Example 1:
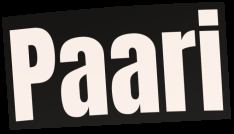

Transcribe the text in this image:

Paari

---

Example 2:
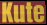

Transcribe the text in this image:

Kute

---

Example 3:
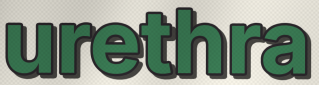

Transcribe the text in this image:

urethra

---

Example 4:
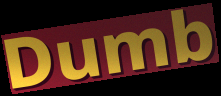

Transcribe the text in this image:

Dumb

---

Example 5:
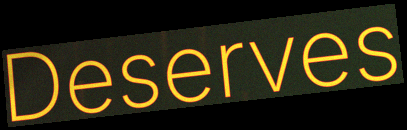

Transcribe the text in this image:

Deserves